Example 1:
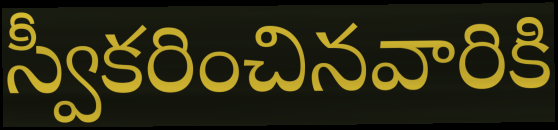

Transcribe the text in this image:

స్వీకరించినవారికి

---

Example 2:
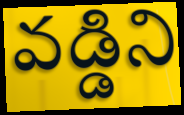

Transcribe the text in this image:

వడ్డిని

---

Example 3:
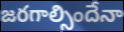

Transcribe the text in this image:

జరగాల్సిందేనా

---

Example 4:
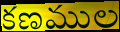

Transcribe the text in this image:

కణముల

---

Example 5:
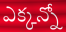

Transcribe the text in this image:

ఎక్కన్నో